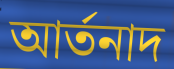
আৰ্তনাদ